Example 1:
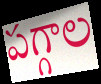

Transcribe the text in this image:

పగ్గాల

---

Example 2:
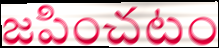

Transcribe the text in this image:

జపించటం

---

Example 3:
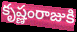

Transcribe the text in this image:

కృష్ణంరాజుకి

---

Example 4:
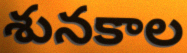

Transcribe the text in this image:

శునకాల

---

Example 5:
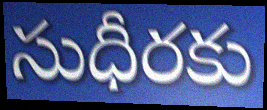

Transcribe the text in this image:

సుధీరకు